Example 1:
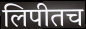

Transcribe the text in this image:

लिपीतच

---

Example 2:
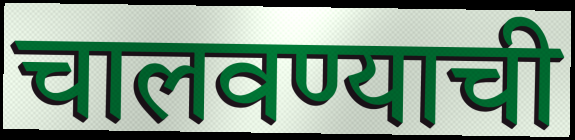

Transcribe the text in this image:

चालवण्याची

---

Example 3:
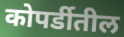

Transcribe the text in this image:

कोपर्डीतील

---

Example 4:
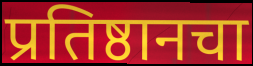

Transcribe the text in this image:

प्रतिष्ठानचा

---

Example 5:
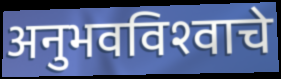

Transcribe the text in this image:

अनुभवविश्वाचे